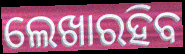
ଲେଖାରହିବ